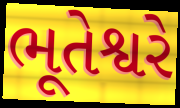
ભૂતેશ્વરે